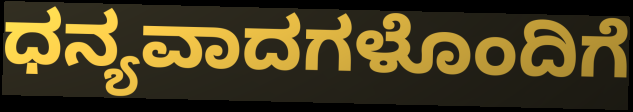
ಧನ್ಯವಾದಗಳೊಂದಿಗೆ